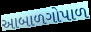
આબાળગોપાળ